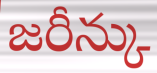
జరీన్కు